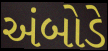
અંબોડે